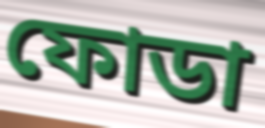
ফোডা